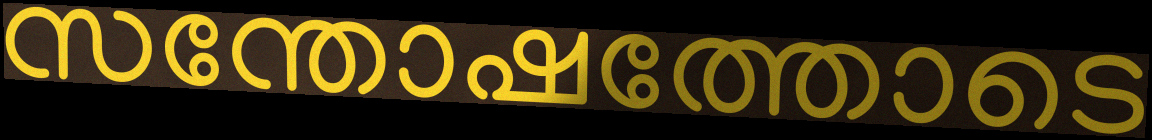
സന്തോഷത്തോടെ